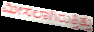
ಮೀಸಲಾಗಿರುತ್ತಿತ್ತು